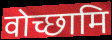
वोच्छामि